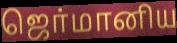
ஜெர்மானிய